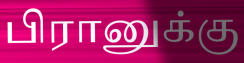
பிரானுக்கு